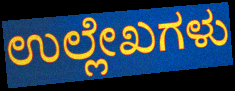
ಉಲ್ಲೇಖಗಳು